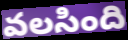
వలసింది